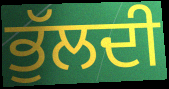
ਭੁੱਲਦੀ